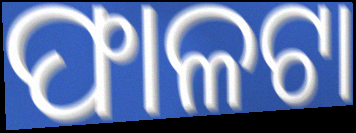
ଫାଳଟା